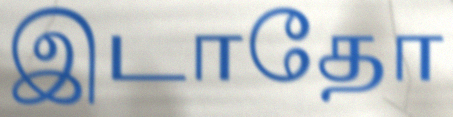
இடாதோ